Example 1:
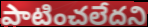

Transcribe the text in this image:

పాటించలేదని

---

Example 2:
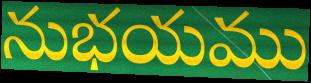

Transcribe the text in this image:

నుభయము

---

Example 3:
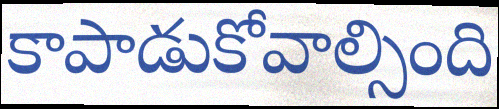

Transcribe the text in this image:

కాపాడుకోవాల్సింది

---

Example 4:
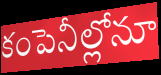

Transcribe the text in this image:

కంపెనీల్లోనూ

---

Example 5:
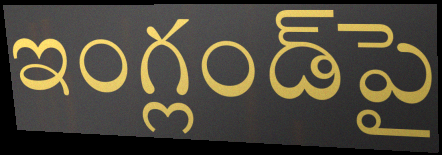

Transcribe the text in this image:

ఇంగ్లండ్‌పై